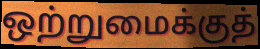
ஒற்றுமைக்குத்